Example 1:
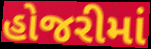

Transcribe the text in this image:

હોજરીમાં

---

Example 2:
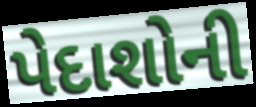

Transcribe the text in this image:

પેદાશોની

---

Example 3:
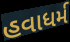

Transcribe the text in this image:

હવાધર્મ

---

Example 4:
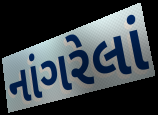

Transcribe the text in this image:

નાંગરેલાં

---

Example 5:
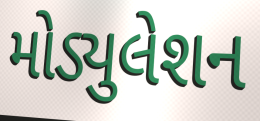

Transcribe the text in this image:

મોડ્યુલેશન